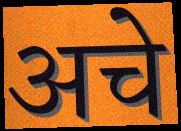
अचे